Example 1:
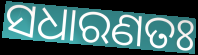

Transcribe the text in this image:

ସଧାରଣତଃ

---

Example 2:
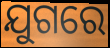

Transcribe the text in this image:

ଯୁଗରେ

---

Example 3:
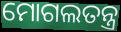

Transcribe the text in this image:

ମୋଗଲତନ୍ତ୍ର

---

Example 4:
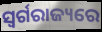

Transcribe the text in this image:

ସ୍ୱର୍ଗରାଜ୍ୟରେ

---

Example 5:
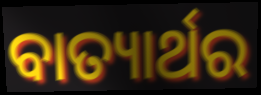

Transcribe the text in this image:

ବାତ୍ୟାର୍ଥର